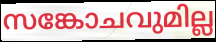
സങ്കോചവുമില്ല